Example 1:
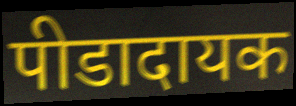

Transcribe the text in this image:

पीडादायक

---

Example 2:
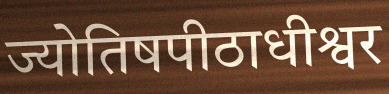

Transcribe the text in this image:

ज्योतिषपीठाधीश्वर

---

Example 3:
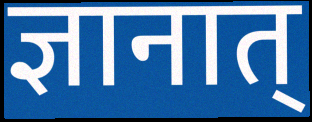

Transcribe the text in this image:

ज्ञानात्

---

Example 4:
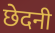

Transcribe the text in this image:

छेदनी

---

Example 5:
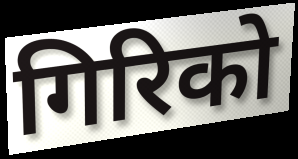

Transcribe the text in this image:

गिरिको